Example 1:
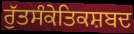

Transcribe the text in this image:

ਰੁੱਤਸੰਕੇਤਿਕਸ਼ਬਦ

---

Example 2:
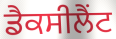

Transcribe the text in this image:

ਡੈਕਸੀਲੈਂਟ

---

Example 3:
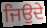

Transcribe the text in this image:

ਜਿਉਦੇ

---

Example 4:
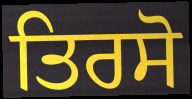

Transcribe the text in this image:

ਤਿਰਸੋ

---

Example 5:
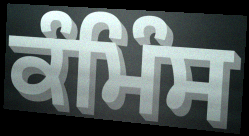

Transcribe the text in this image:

ਕੰਮਿੰਸ